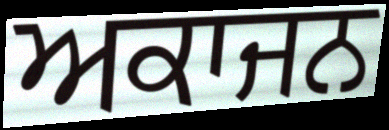
ਅਕਾਜਨ